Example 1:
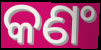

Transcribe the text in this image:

କଣଂ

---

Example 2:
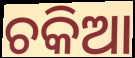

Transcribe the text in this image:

ଚକିଆ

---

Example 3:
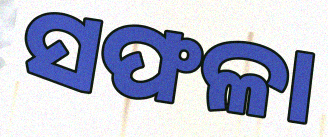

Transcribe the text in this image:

ସଫଳା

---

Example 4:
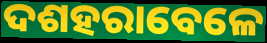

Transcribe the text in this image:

ଦଶହରାବେଳେ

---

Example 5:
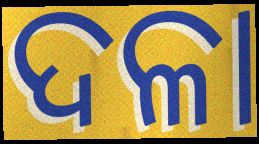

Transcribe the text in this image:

ଦଳା